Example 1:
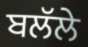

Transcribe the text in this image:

ਬਲੱਲੇ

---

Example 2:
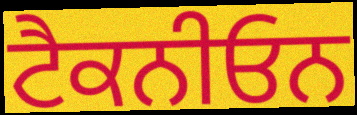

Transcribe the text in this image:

ਟੈਕਨੀਓਨ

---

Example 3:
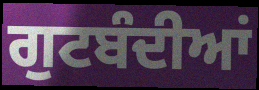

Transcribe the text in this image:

ਗੁਟਬੰਦੀਆਂ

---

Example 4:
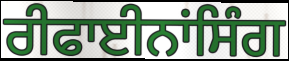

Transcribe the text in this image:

ਰੀਫਾਈਨਾਂਸਿੰਗ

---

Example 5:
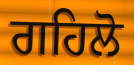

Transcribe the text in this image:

ਗਹਿਲੋ